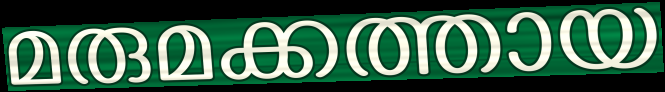
മരുമക്കത്തായ